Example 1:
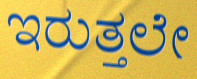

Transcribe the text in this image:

ಇರುತ್ತಲೇ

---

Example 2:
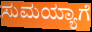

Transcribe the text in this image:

ಸುಮಯ್ಯಾಗೆ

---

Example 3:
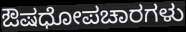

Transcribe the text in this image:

ಔಷಧೋಪಚಾರಗಳು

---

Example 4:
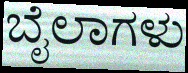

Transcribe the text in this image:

ಬೈಲಾಗಳು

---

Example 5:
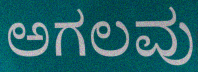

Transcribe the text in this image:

ಅಗಲವು